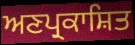
ਅਣਪ੍ਰਕਾਸ਼ਿਤ